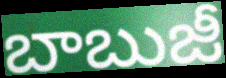
బాబుజీ